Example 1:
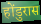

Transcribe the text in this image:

होंडुरास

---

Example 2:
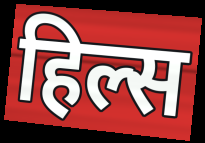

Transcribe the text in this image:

हिल्स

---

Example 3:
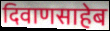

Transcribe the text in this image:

दिवाणसाहेब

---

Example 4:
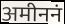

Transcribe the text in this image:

अमीननं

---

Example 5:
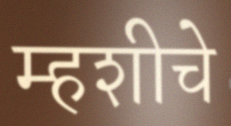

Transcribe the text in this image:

म्हशीचे